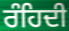
ਰੰਹਿਦੀ